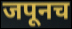
जपूनच